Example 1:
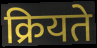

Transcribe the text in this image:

क्रियते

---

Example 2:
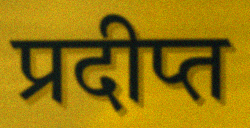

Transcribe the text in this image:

प्रदीप्त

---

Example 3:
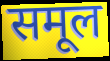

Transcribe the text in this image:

समूल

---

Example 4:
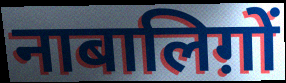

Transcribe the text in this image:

नाबालिग़ों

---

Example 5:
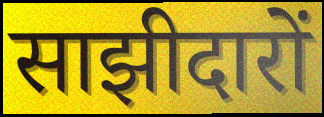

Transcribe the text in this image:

साझीदारों